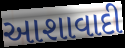
આશાવાદી